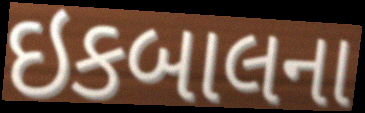
ઇકબાલના